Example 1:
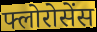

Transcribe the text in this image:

फ्लोरोसेंस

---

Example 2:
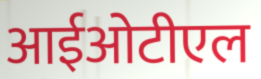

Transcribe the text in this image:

आईओटीएल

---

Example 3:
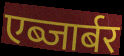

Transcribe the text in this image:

एब्जार्बर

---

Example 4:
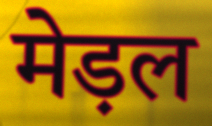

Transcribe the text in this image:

मेड़ल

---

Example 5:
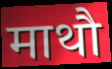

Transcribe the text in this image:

माथौ